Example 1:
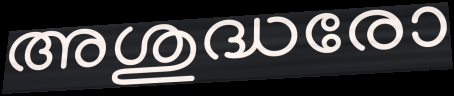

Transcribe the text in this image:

അശുദ്ധരോ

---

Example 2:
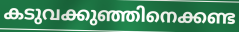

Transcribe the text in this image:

കടുവക്കുഞ്ഞിനെക്കണ്ട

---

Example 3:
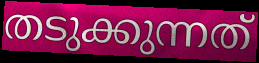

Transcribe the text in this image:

തടുക്കുന്നത്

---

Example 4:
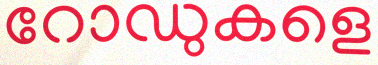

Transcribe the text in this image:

റോഡുകളെ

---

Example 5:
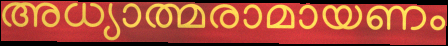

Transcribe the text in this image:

അധ്യാത്മരാമായണം